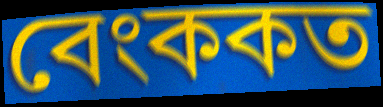
বেংককত